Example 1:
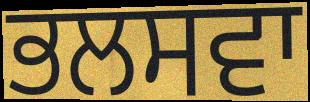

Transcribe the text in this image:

ਭਲਸਵਾ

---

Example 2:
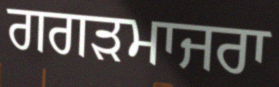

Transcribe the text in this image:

ਗਗੜਮਾਜਰਾ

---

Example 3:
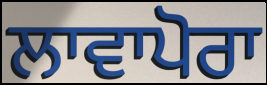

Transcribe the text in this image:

ਲਾਵਾਪੋਰਾ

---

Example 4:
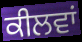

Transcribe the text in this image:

ਕੀਲਵਾਂ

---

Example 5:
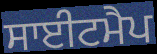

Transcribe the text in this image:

ਸਾਈਟਮੈਪ